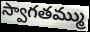
స్వాగతమ్ము